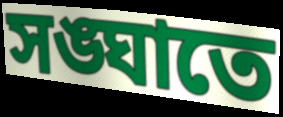
সঙ্ঘাতে